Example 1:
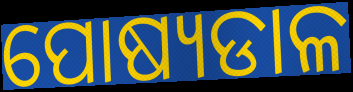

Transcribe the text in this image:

ପୋଷ୍ୟଡାଳ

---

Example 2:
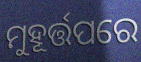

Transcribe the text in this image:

ମୁହୂର୍ତ୍ତପରେ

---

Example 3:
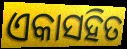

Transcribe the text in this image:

ଏକାସହିତ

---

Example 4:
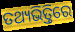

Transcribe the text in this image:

ତଥ୍ୟଭିତ୍ତିରେ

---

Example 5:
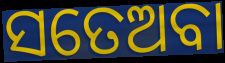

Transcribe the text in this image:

ସତେଅବା